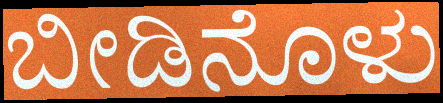
ಬೀಡಿನೊಳು